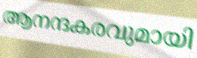
ആനന്ദകരവുമായി